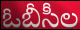
ఓబీసీల